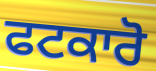
ਫਟਕਾਰੋ